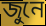
জুনে